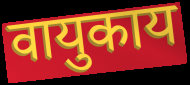
वायुकाय